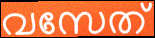
വസേത്